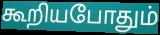
கூறியபோதும்